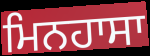
ਮਿਨਹਾਸਾ